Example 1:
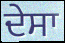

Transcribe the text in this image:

ਦੇਸਾ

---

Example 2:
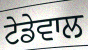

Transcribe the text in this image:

ਟੇਡੇਵਾਲ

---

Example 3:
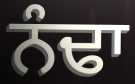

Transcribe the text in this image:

ਨੰਢਾ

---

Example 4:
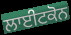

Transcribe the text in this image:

ਲਾਈਟਕੋਨ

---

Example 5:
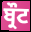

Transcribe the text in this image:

ਬ੍ਰੌਟ